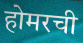
होमरची